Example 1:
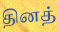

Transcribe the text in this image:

தினத்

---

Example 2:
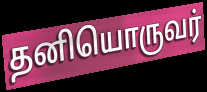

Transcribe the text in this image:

தனியொருவர்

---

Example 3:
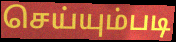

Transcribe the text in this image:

செய்யும்படி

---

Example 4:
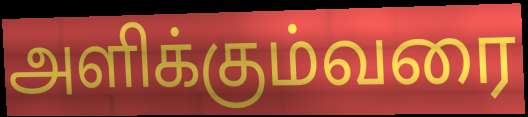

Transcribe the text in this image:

அளிக்கும்வரை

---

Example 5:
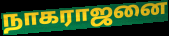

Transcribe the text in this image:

நாகராஜனை